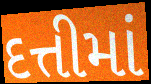
દત્તીમાં